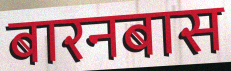
बारनबास